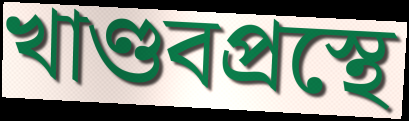
খাণ্ডবপ্রস্থে